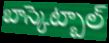
బాస్కెట్బాల్